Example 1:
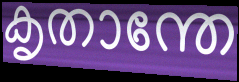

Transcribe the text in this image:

കൃതാന്തേ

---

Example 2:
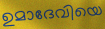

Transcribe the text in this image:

ഉമാദേവിയെ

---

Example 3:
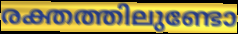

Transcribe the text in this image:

രക്തത്തിലുണ്ടോ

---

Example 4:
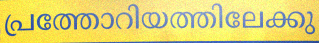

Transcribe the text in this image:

പ്രത്തോറിയത്തിലേക്കു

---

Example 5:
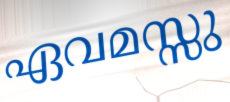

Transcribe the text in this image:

ഏവമസ്സു